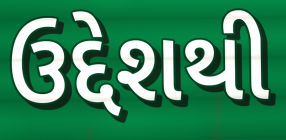
ઉદ્દેશથી